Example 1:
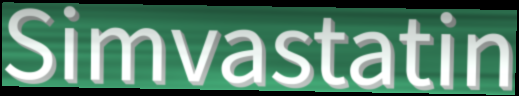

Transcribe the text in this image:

Simvastatin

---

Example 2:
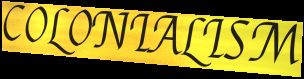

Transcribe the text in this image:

COLONIALISM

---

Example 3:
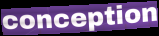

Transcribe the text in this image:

conception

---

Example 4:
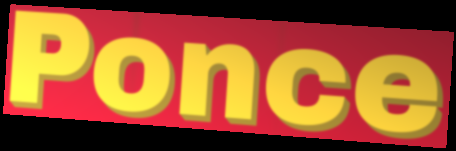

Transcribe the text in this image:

Ponce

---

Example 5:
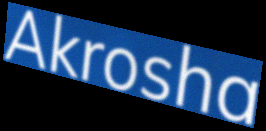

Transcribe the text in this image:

Akrosha